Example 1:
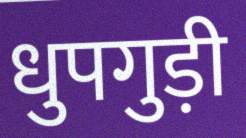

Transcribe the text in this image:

धुपगुड़ी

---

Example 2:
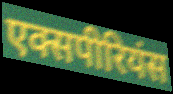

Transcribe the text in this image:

एक्सपीरियंस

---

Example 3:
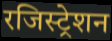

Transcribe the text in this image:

रजिस्‍ट्रेशन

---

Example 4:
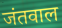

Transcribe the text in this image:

जंतवाल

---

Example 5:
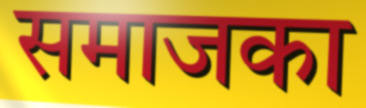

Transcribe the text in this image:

समाजका